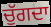
ਚੁੱਗਦਾ